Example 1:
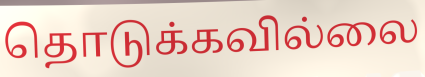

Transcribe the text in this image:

தொடுக்கவில்லை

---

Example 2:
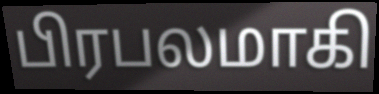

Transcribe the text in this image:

பிரபலமாகி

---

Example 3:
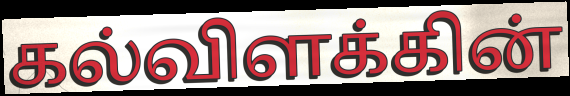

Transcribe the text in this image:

கல்விளக்கின்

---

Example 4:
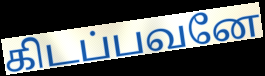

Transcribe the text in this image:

கிடப்பவனே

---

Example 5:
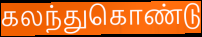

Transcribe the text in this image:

கலந்துகொண்டு